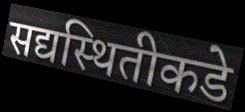
सद्यस्थितीकडे